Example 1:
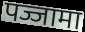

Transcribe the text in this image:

पज्जामा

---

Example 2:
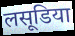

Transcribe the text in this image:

लसूडिया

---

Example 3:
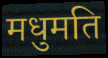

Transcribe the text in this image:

मधुमति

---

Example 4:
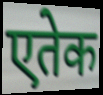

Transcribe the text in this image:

एतेक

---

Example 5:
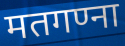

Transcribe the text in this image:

मतगण्ना